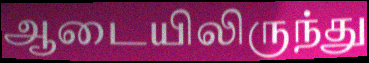
ஆடையிலிருந்து